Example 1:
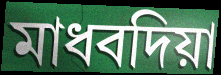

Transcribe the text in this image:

মাধবদিয়া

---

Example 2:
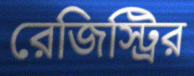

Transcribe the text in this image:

রেজিস্ট্রির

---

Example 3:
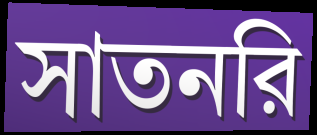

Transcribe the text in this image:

সাতনরি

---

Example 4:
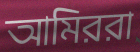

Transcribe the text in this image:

আমিররা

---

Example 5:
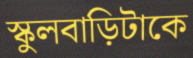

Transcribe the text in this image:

স্কুলবাড়িটাকে